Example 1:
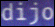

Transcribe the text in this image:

dijo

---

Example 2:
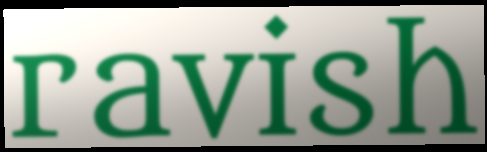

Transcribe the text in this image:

ravish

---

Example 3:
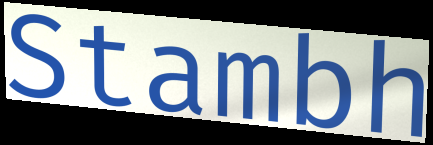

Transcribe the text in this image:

Stambh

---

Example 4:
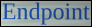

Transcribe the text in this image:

Endpoint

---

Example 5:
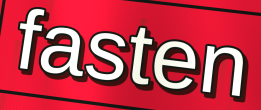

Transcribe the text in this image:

fasten